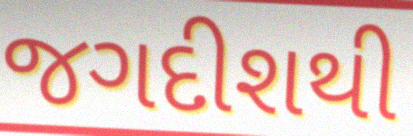
જગદીશથી